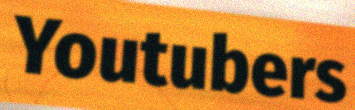
Youtubers